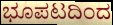
ಭೂಪಟದಿಂದ